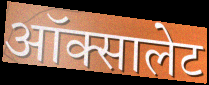
ऑक्सालेट